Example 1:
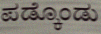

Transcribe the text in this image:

ಪಡ್ಕೊಂಡು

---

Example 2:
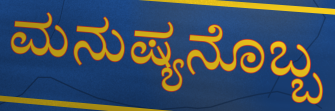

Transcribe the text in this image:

ಮನುಷ್ಯನೊಬ್ಬ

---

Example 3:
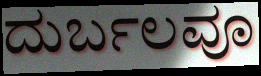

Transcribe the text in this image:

ದುರ್ಬಲವೂ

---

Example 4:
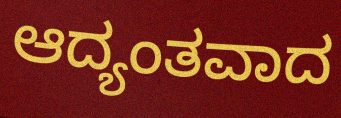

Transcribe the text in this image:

ಆದ್ಯಂತವಾದ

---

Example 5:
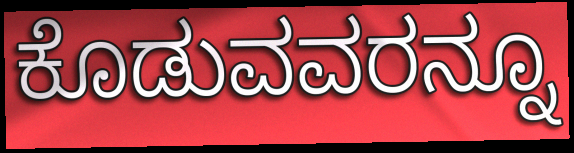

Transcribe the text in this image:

ಕೊಡುವವರನ್ನೂ